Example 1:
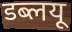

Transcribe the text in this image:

डब्लयू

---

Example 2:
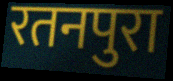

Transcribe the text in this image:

रतनपुरा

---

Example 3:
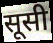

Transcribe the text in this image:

सूसी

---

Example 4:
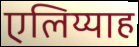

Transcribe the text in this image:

एलिय्याह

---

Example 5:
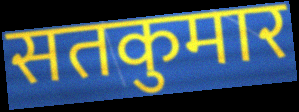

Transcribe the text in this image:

सतकुमार